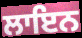
ਲਾਇਨ